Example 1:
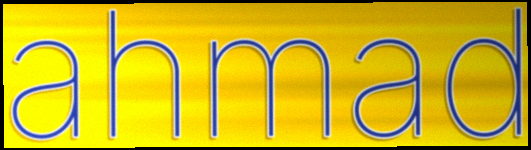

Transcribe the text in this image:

ahmad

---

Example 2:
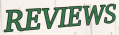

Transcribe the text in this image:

REVIEWS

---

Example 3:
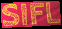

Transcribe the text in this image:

SIFL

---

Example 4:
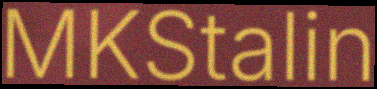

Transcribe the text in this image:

MKStalin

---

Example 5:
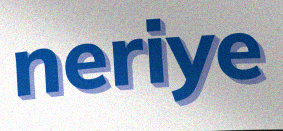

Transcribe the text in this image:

neriye